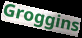
Groggins